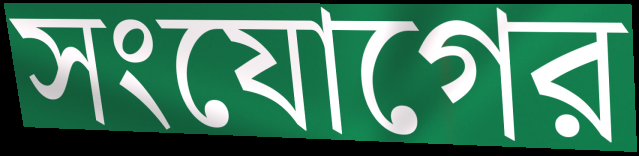
সংযোগের